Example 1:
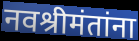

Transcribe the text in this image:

नवश्रीमंतांना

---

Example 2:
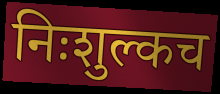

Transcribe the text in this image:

निःशुल्कच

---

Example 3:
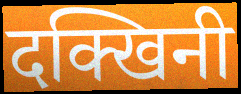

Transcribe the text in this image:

दक्खिनी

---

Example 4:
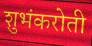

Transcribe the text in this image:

शुभंकरोती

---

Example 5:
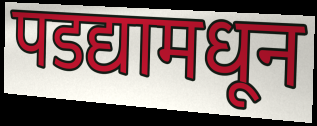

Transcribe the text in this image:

पडद्यामधून